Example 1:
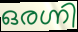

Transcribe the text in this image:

ഒരഗ്നി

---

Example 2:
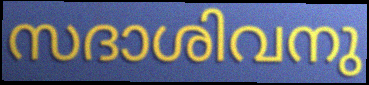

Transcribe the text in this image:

സദാശിവനു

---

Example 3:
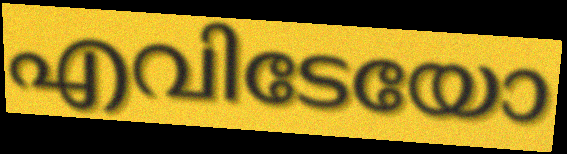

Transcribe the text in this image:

എവിടേയോ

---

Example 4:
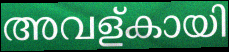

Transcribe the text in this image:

അവള്കായി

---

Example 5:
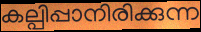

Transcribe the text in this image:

കല്പിപ്പാനിരിക്കുന്ന